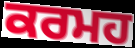
ਕਰਮਹ